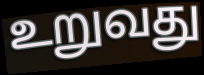
உறுவது